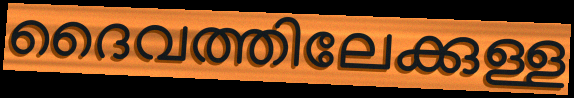
ദൈവത്തിലേക്കുള്ള